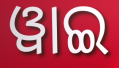
ୱାଇ